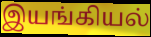
இயங்கியல்